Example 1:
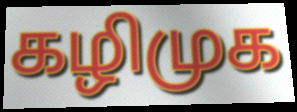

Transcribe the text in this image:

கழிமுக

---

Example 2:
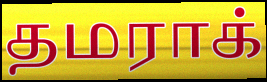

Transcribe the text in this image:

தமராக்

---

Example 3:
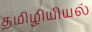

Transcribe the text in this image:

தமிழியியல்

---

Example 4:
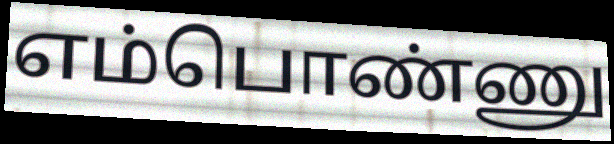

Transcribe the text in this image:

எம்பொண்ணு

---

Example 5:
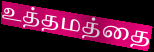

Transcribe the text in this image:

உத்தமத்தை